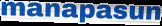
manapasun